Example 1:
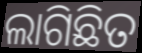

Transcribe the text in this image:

ଲାଗିଛିତ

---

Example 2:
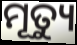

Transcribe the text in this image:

ମୂତ୍ୟୁ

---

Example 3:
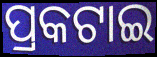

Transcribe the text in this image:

ପ୍ରକଟାଇ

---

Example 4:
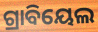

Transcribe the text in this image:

ଗ୍ରାବିୟେଲ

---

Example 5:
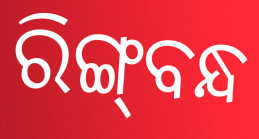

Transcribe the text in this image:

ରିଙ୍ଗ୍‌ବନ୍ଧ